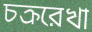
চক্ররেখা